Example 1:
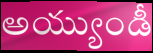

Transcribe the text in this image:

అయ్యుండీ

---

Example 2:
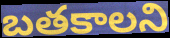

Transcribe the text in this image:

బతకాలని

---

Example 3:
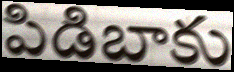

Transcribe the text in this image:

పిడిబాకు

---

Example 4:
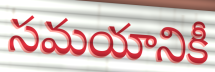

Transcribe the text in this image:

సమయానికీ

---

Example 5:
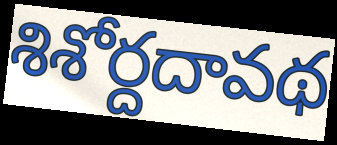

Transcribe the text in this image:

శిశోర్దదావథ